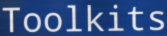
Toolkits